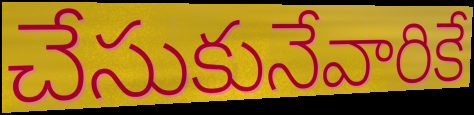
చేసుకునేవారికే